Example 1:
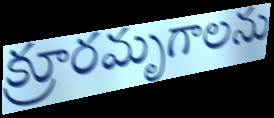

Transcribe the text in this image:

క్రూరమృగాలను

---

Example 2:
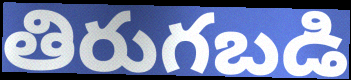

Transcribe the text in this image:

తిరుగబడి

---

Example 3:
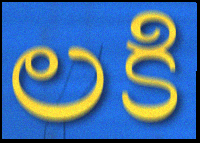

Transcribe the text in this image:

లకి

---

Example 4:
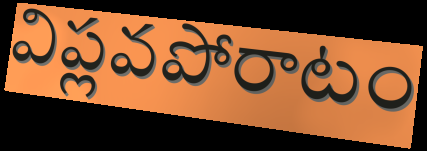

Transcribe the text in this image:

విప్లవపోరాటం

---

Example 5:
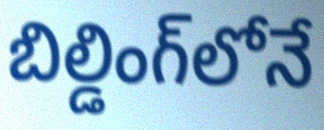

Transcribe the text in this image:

బిల్డింగ్‌లోనే